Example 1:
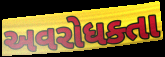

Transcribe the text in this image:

અવરોધક્તા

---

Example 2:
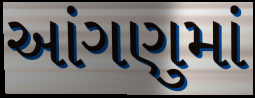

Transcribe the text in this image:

આંગણુમાં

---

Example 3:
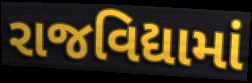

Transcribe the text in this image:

રાજવિદ્યામાં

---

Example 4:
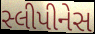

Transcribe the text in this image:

સ્લીપીનેસ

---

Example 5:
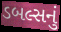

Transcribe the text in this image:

ડબલ્સનું